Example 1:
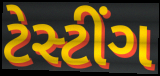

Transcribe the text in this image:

ટેસ્ટીંગ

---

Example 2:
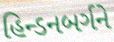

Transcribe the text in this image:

હિન્ડનબર્ગને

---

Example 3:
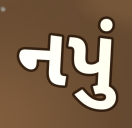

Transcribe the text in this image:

નપું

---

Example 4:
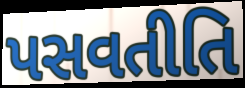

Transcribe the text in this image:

પસવતીતિ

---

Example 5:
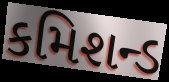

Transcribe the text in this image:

કમિશન્ડ